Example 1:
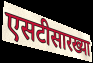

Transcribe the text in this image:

एसटीसारख्या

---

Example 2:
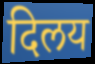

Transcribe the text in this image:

दिलय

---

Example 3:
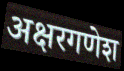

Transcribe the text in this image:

अक्षरगणेश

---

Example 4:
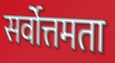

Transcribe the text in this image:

सर्वोत्तमता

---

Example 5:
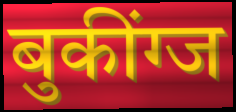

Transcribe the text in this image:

बुकींग्ज